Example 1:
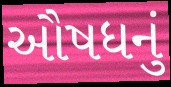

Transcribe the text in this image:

ઔષધનું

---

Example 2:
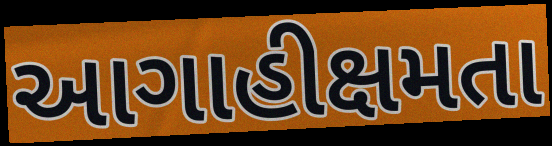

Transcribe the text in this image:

આગાહીક્ષમતા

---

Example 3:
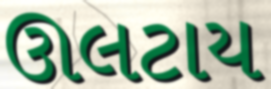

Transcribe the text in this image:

ઊલટાય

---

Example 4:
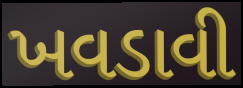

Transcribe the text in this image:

ખવડાવી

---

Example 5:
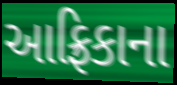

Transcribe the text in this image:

આફ્રિકાના